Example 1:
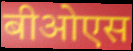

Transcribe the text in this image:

बीओएस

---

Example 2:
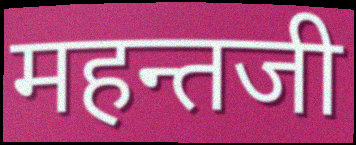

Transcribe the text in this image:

महन्तजी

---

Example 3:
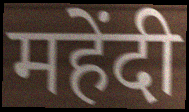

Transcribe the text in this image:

महेंदी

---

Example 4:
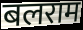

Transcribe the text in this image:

बलराम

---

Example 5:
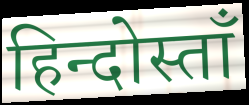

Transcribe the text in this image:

हिन्दोस्ताँ